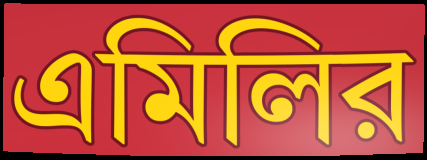
এমিলির